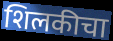
शिलकीचा